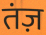
तंज़